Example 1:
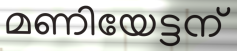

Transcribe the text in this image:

മണിയേട്ടന്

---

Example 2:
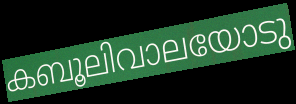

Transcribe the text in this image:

കബൂലിവാലയോടു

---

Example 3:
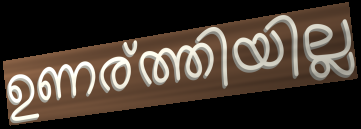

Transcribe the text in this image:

ഉണര്ത്തിയില്ല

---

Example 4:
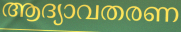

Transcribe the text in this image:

ആദ്യാവതരണ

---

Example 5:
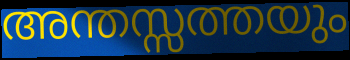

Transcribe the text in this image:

അന്തസ്സത്തയും